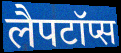
लैपटॉप्‍स